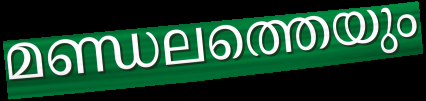
മണ്ഡലത്തെയും